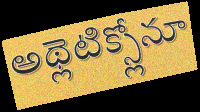
అథ్లెటిక్స్లోనూ